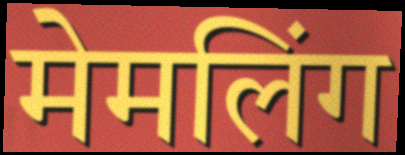
मेमलिंग